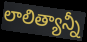
లాలిత్యాన్నీ